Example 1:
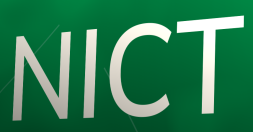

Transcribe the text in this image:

NICT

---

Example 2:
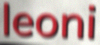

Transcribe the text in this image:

leoni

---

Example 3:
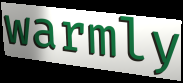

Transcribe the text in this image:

warmly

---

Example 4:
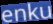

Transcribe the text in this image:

enku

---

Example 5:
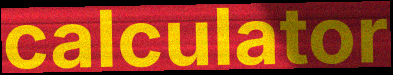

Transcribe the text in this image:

calculator